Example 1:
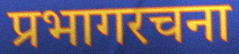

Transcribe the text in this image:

प्रभागरचना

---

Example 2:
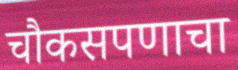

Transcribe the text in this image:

चौकसपणाचा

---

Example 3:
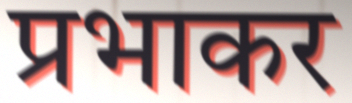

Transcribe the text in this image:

प्रभाकर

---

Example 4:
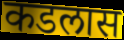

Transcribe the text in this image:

कडलास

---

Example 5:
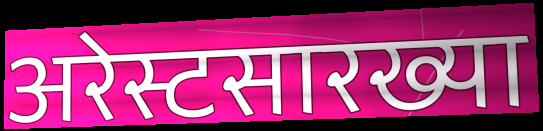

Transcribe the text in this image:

अरेस्टसारख्या